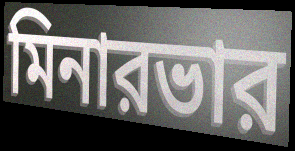
মিনারভার